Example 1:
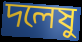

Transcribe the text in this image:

দলেষু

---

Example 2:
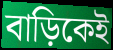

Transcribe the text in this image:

বাড়িকেই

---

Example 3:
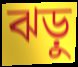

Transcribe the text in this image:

ঝড়ু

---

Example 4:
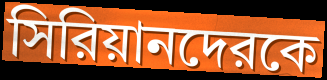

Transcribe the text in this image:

সিরিয়ানদেরকে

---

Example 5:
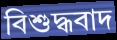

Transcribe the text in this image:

বিশুদ্ধবাদ